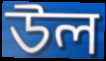
উল